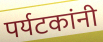
पर्यटकांनी